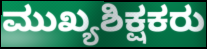
ಮುಖ್ಯಶಿಕ್ಷಕರು